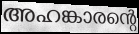
അഹങ്കാരന്റെ